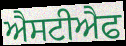
ਐਸਟੀਐਫ